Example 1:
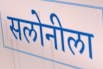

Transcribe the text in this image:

सलोनीला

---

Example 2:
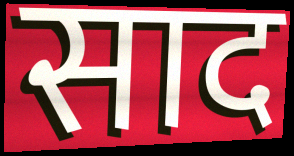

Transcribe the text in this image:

साद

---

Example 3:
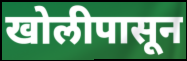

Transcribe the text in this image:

खोलीपासून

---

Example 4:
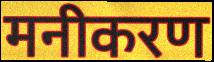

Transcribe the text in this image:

मनीकरण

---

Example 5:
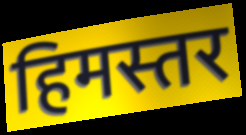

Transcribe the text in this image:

हिमस्तर